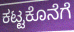
ಕಟ್ಟಕೊನೆಗೆ